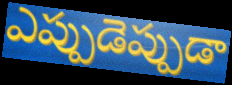
ఎప్పుడెప్పుడా